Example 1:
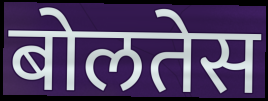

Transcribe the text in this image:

बोलतेस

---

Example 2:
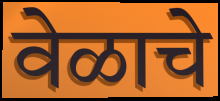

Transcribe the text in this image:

वेळाचे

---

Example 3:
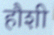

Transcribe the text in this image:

हौशी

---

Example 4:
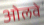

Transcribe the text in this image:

ओलवे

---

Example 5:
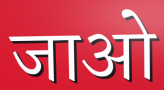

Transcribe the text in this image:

जाओ